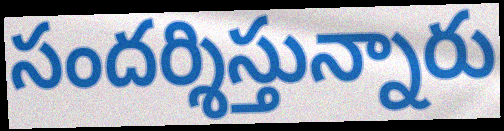
సందర్శిస్తున్నారు